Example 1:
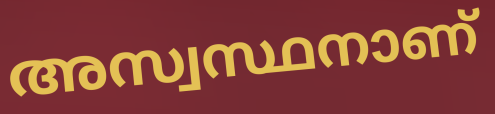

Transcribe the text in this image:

അസ്വസ്ഥനാണ്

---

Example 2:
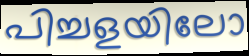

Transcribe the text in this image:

പിച്ചളയിലോ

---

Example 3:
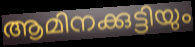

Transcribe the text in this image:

ആമിനക്കുട്ടിയും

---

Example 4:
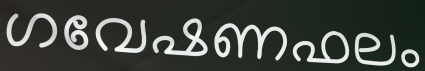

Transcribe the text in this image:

ഗവേഷണഫലം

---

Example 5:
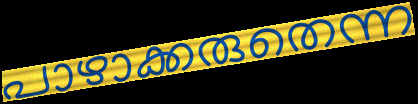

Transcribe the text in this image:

പാഴാക്കരുതെന്ന